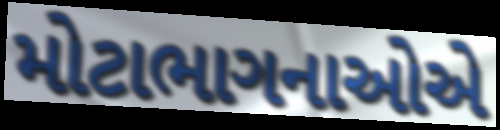
મોટાભાગનાઓએ